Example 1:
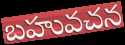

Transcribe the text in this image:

బహువచన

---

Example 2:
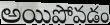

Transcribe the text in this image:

అయిపోవడం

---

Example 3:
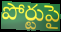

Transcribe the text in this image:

పోర్టుపై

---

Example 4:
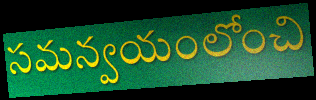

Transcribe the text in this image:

సమన్వయంలోంచి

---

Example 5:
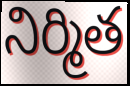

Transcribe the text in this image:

నిర్మిత